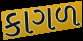
કાગળ